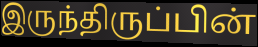
இருந்திருப்பின்